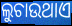
ଲୁଚାଉଥାଏ